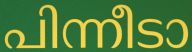
പിന്നീടാ